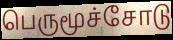
பெருமூச்சோடு